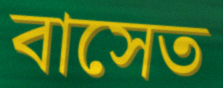
বাসেত